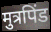
मुत्रपिंड